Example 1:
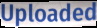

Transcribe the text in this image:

Uploaded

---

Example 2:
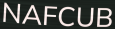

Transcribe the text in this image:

NAFCUB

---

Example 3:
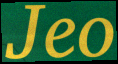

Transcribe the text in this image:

Jeo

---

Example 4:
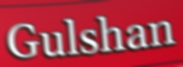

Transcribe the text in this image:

Gulshan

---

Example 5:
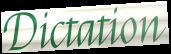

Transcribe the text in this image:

Dictation